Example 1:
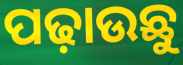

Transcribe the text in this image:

ପଢ଼ାଉଛୁ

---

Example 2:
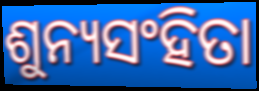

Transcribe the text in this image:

ଶୁନ୍ୟସଂହିତା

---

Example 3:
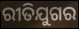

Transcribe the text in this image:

ରୀତିଯୁଗର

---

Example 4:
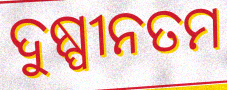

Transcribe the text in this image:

ଦୁଷ୍ପୀନତମ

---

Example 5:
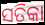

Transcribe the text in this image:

ସତିକା